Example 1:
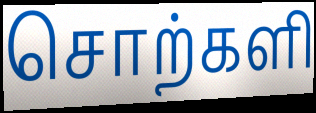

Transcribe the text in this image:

சொற்களி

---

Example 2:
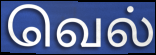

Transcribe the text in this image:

வெல்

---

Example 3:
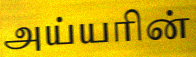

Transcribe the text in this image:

அய்யரின்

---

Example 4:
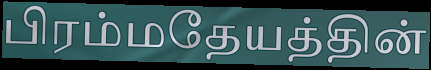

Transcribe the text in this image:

பிரம்மதேயத்தின்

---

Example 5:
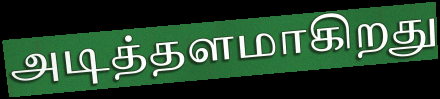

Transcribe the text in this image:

அடித்தளமாகிறது